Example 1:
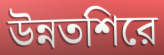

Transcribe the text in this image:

উন্নতশিরে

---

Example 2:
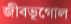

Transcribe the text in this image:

জীবভূগোল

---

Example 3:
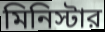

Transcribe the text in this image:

মিনিস্টার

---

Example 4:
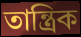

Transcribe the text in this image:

তান্ত্রিক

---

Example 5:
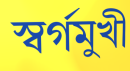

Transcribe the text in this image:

স্বর্গমুখী